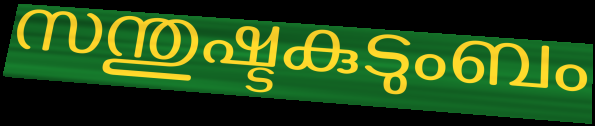
സന്തുഷ്ടകുടുംബം